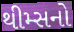
થીમ્સનો